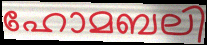
ഹോമബലി